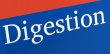
Digestion